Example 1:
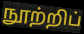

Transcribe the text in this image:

நூற்றிப்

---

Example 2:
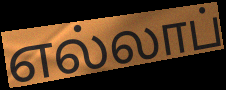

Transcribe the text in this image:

எல்லாப்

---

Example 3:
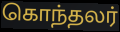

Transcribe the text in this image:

கொந்தலர்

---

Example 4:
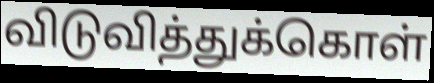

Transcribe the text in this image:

விடுவித்துக்கொள்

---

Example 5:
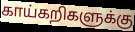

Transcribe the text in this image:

காய்கறிகளுக்கு